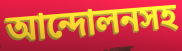
আন্দোলনসহ